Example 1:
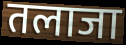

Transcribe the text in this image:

तलाजा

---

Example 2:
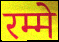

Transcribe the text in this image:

रम्मे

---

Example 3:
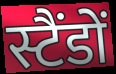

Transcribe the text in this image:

स्टैंडों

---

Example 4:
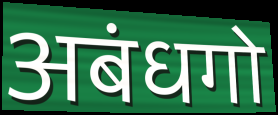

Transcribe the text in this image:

अबंधगो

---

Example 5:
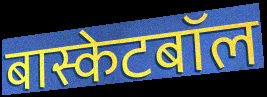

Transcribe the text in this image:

बास्‍केटबॉल